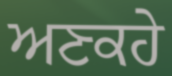
ਅਣਕਹੇ